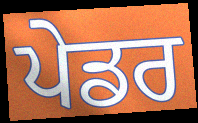
ਪੇਡਰ